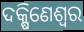
ଦକ୍ଷିଣେଶ୍ୱର